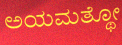
ಅಯಮತ್ಥೋ